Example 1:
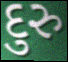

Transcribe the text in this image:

દુરુ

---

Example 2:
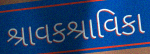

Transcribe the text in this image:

શ્રાવકશ્રાવિકા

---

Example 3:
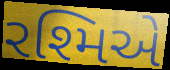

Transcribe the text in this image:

રશ્મિએ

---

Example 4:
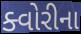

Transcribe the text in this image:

ક્વોરીના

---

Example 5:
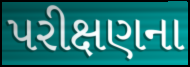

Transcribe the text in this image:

પરીક્ષણના